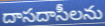
దాసదాసీలను